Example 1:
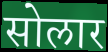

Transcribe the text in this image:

सोलार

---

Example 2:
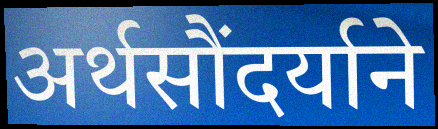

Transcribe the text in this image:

अर्थसौंदर्याने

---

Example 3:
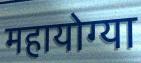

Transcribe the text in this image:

महायोग्या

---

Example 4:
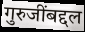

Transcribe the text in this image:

गुरुजींबद्दल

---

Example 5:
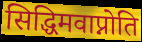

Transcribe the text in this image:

सिद्धिमवाप्नोति